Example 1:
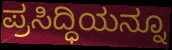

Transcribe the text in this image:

ಪ್ರಸಿದ್ಧಿಯನ್ನೂ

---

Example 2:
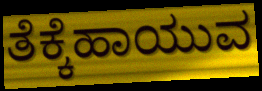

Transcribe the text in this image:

ತೆಕ್ಕೆಹಾಯುವ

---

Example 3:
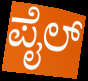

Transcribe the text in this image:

ಪೈಲ್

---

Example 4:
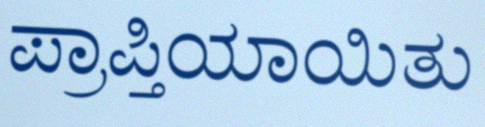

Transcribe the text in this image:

ಪ್ರಾಪ್ತಿಯಾಯಿತು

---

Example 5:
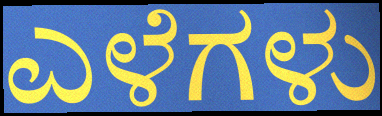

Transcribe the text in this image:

ಎಳೆಗಳು